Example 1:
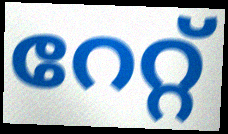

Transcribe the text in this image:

റേറ്റ്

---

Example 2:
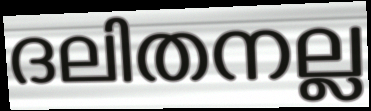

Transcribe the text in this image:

ദലിതനല്ല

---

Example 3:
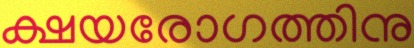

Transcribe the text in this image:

ക്ഷയരോഗത്തിനു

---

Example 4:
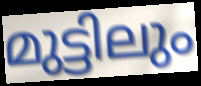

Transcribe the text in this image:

മുട്ടിലും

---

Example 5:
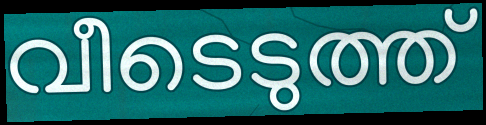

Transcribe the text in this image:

വീടെടുത്ത്